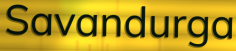
Savandurga